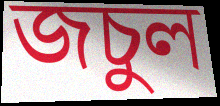
জচুল